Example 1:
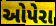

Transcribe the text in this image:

ઓપેરા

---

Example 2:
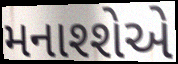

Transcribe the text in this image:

મનાશ્શેએ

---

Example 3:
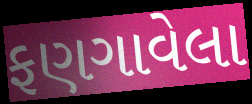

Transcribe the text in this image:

ફણગાવેલા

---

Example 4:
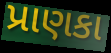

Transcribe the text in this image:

પ્રાણકા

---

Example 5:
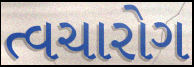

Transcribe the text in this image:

ત્વચારોગ